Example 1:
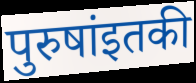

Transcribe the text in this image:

पुरुषांइतकी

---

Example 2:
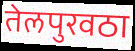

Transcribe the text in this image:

तेलपुरवठा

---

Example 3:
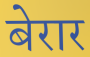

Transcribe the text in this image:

बेरार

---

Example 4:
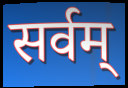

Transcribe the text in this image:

सर्वम्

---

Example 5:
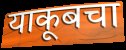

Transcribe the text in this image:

याकूबचा